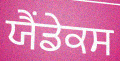
ਯੈਂਡੇਕਸ